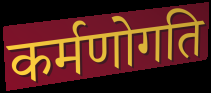
कर्मणोगति